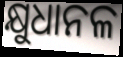
କ୍ଷୁଧାନଳ